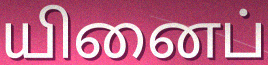
யினைப்